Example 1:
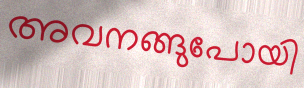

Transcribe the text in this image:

അവനങ്ങുപോയി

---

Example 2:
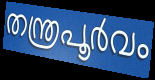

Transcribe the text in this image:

തന്ത്രപൂർവം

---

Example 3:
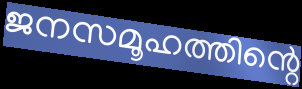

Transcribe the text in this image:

ജനസമൂഹത്തിന്റെ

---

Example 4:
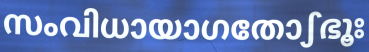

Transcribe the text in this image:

സംവിധായാഗതോഽഭൂഃ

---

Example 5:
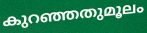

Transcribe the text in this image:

കുറഞ്ഞതുമൂലം